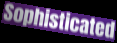
Sophisticated